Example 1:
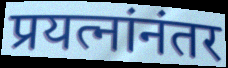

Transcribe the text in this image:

प्रयत्नांनंतर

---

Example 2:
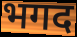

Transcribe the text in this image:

भगद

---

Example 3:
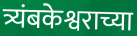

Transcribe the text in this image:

त्र्यंबकेश्वराच्या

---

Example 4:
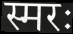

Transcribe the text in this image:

स्मरः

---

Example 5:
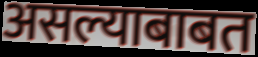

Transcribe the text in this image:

असल्याबाबत